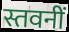
स्तवनीं